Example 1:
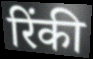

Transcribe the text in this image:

रिंकी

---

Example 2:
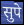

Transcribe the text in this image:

सुपे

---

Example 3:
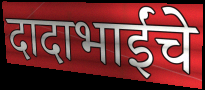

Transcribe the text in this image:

दादाभाईंचे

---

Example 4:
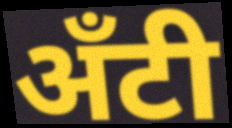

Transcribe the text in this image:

अँटी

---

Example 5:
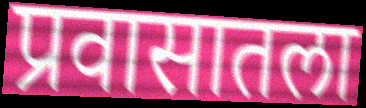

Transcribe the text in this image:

प्रवासातला